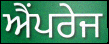
ਐਂਪਰੇਜ